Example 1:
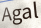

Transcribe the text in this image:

Agal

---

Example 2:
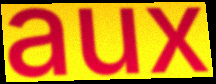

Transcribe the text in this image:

aux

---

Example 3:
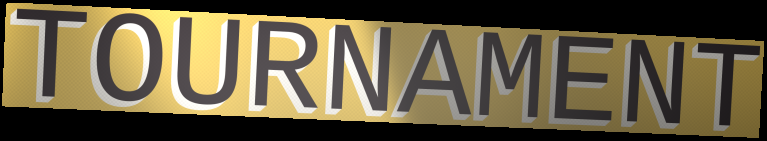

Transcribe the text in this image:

TOURNAMENT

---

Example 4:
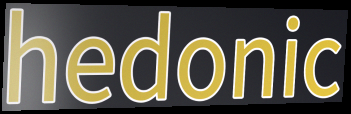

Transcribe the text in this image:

hedonic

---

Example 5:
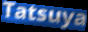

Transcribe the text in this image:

Tatsuya